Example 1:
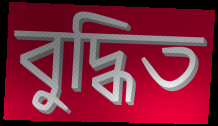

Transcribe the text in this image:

বুদ্ধিত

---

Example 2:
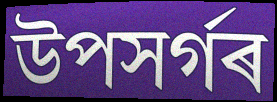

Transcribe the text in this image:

উপসৰ্গৰ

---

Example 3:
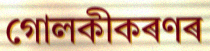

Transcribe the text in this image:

গোলকীকৰণৰ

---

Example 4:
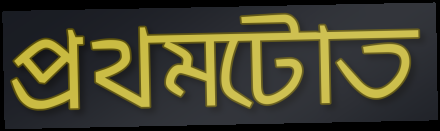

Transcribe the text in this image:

প্ৰথমটোত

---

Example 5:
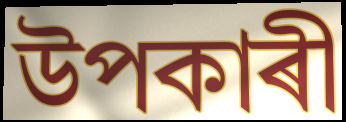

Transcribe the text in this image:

উপকাৰী